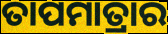
ତାପମାତ୍ରାର